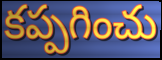
కప్పగించు